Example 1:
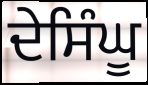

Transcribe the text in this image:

ਦੇਸਿੰਘੂ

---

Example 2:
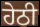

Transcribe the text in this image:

ਹੇਠੀ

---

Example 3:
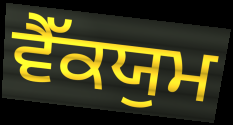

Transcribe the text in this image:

ਵੈੱਕਯੁਮ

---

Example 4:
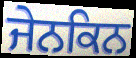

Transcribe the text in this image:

ਜੇਨਕਿਨ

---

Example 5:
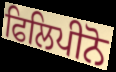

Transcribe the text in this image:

ਫਿਲਿਪੀਨੋ